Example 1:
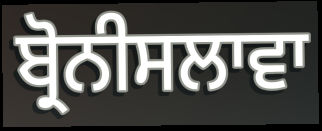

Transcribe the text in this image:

ਬ੍ਰੋਨੀਸਲਾਵਾ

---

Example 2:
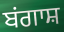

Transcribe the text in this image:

ਬਂਗਾਸ਼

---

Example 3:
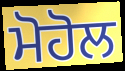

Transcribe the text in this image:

ਮੋਹੋਲ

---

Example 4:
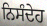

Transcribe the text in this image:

ਨਿਸੰਦੇਹ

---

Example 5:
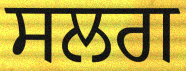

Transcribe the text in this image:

ਸਲਗ